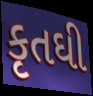
કૃતઘી